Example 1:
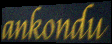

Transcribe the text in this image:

ankondu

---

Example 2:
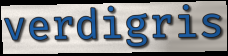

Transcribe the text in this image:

verdigris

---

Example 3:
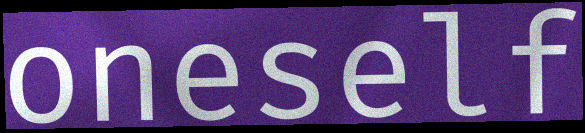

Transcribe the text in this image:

oneself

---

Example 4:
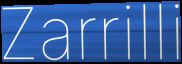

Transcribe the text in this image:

Zarrilli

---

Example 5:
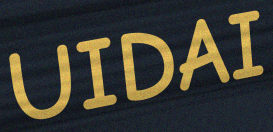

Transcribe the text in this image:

UIDAI